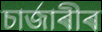
চাৰ্জাৰীৰ